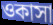
ওকাসা